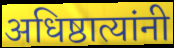
अधिष्ठात्यांनी